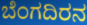
ಬೆಂಗದಿರನ